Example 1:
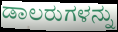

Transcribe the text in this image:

ಡಾಲರುಗಳನ್ನು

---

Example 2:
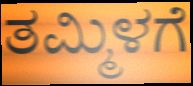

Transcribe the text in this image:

ತಮ್ಮಿಳಗೆ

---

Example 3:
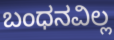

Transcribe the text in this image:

ಬಂಧನವಿಲ್ಲ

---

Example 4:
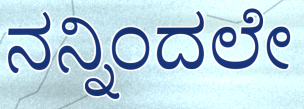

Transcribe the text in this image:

ನನ್ನಿಂದಲೇ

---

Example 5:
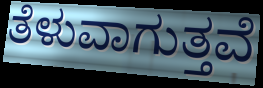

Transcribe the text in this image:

ತೆಳುವಾಗುತ್ತವೆ